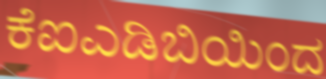
ಕೆಐಎಡಿಬಿಯಿಂದ